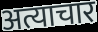
अत्याचार